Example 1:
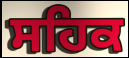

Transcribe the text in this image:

ਸਹਿਕ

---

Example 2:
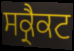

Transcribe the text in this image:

ਸਕ੍ਰੈਕਟ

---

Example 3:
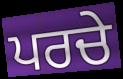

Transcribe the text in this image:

ਪਰਚੇ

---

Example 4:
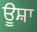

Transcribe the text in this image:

ਊਸ਼ਾ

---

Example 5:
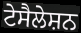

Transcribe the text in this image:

ਟੇਸੈਲੇਸ਼ਨ